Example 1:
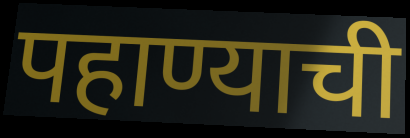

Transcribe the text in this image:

पहाण्याची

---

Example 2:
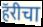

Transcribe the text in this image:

हॅरीचा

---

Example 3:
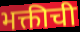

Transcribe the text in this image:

भक्तीची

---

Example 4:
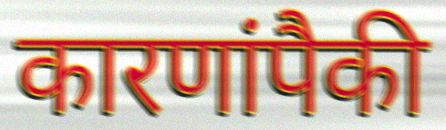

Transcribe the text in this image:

कारणांपैकी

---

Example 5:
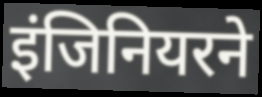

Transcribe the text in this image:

इंजिनियरने